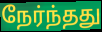
நேர்ந்தது